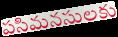
పసిమనసులకు